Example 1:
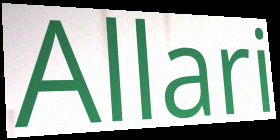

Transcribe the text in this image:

Allari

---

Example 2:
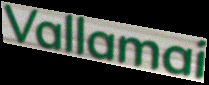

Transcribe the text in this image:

Vallamai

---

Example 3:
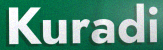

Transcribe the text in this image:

Kuradi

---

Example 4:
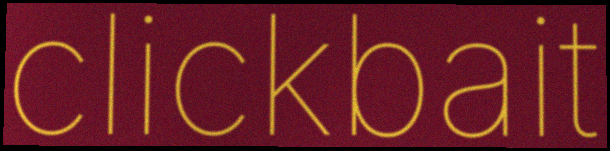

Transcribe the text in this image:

clickbait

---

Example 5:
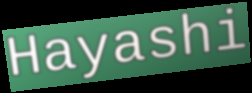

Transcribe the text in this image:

Hayashi